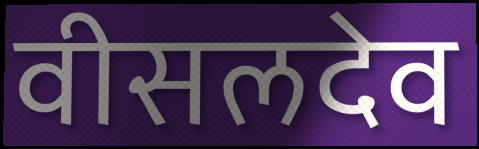
वीसलदेव